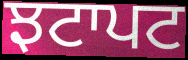
ਝਟਾਪਟ